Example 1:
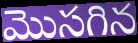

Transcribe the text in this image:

మొసగిన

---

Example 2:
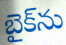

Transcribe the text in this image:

బైక్‌ను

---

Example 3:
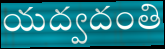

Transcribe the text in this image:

యద్వదంతి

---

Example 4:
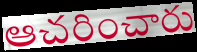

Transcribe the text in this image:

ఆచరించారు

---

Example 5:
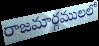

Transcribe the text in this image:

రాజమార్గములలో